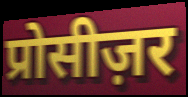
प्रोसीज़र